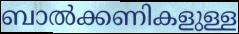
ബാൽക്കണികളുള്ള